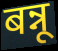
बन्नू